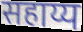
सहाय्य